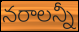
నరాలన్నీ